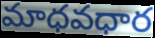
మాధవధార